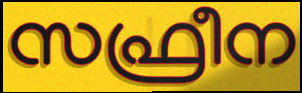
സഫ്രീന